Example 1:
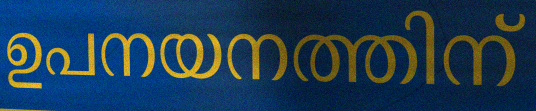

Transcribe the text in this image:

ഉപനയനത്തിന്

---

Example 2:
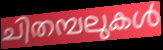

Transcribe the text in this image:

ചിതമ്പലുകൾ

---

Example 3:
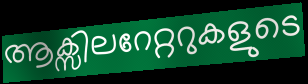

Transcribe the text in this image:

ആക്സിലറേറ്ററുകളുടെ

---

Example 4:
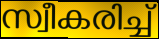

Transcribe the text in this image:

സ്വീകരിച്ച്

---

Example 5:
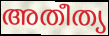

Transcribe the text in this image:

അതീത്യ